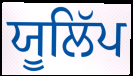
ਯੂਲਿੱਪ